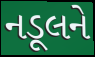
નડૂલને